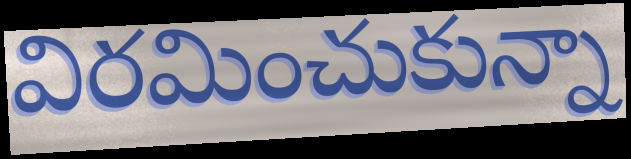
విరమించుకున్నా